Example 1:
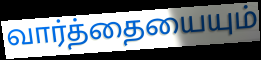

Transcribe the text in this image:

வார்த்தையையும்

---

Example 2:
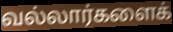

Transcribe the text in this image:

வல்லார்களைக்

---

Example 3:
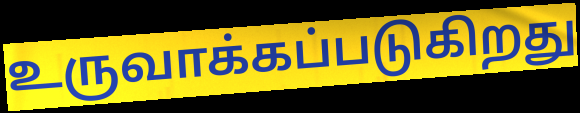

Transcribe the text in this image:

உருவாக்கப்படுகிறது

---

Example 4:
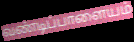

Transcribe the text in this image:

வண்டிப்பாளையம்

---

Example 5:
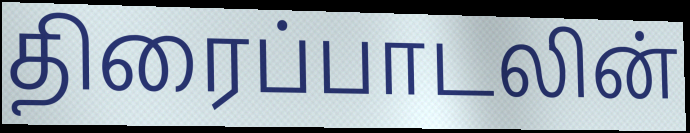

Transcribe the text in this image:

திரைப்பாடலின்